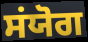
ਸਂਯੋਗ